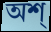
অশ্